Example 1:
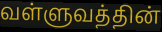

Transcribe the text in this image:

வள்ளுவத்தின்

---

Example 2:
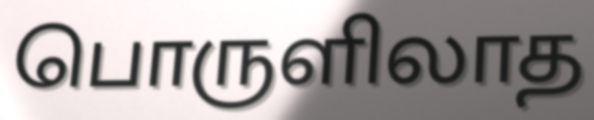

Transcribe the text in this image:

பொருளிலாத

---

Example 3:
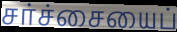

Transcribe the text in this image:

சர்ச்சையைப்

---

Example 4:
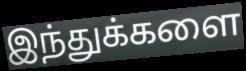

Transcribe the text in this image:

இந்துக்களை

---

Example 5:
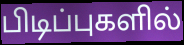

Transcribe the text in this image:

பிடிப்புகளில்